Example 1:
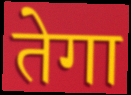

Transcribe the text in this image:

तेगा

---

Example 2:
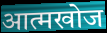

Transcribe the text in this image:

आत्मखोज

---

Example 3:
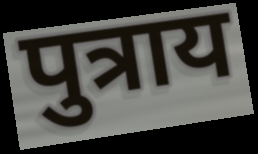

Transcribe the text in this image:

पुत्राय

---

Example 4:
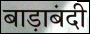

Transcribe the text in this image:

बाड़ाबंदी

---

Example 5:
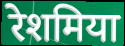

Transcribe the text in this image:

रेशमिया